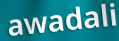
awadali